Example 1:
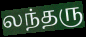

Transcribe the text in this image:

லந்தரு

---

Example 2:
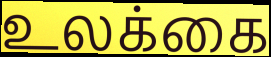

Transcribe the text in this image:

உலக்கை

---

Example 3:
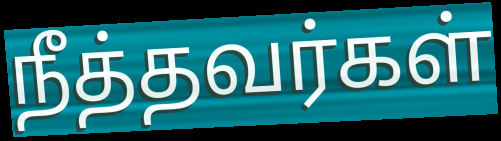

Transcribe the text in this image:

நீத்தவர்கள்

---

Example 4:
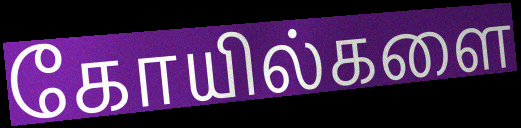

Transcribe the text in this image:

கோயில்களை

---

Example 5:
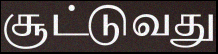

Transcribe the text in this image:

சூட்டுவது